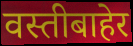
वस्तीबाहेर